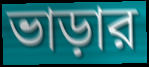
ভাড়ার